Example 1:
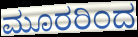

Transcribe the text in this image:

ಮೂರರಿಂದ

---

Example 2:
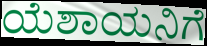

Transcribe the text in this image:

ಯೆಶಾಯನಿಗೆ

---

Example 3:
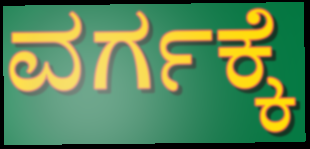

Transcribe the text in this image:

ವರ್ಗಕ್ಕೆ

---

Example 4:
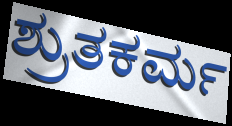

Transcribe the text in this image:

ಶ್ರುತಕರ್ಮ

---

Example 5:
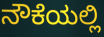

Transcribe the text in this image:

ನೌಕೆಯಲ್ಲಿ